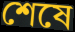
শেষে